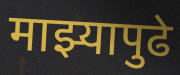
माझ्यापुढे